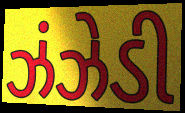
ઝંઝેડી